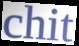
chit